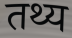
तथ्य